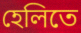
হেলিতে